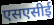
एसएसीई